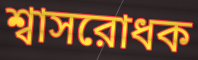
শ্বাসরোধক